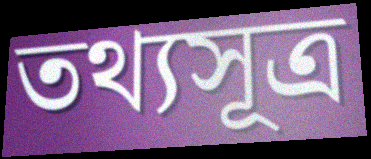
তথ্যসূত্র